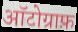
ऑटोग्राफ़